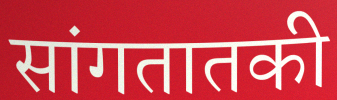
सांगतातकी